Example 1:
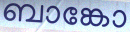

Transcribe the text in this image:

ബാങ്കോ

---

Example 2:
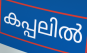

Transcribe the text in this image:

കപ്പലിൽ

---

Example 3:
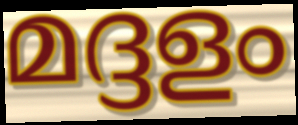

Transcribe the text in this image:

മദ്ദളം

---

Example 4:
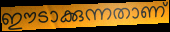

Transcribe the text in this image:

ഈടാക്കുന്നതാണ്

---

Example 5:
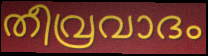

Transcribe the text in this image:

തീവ്രവാദം